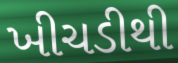
ખીચડીથી